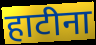
हाटीना